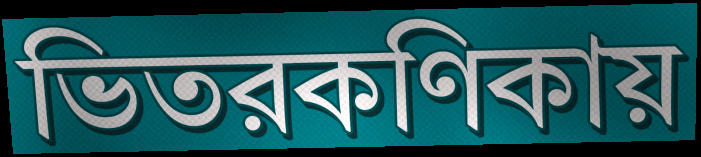
ভিতরকণিকায়